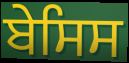
ਬੇਸਿਸ